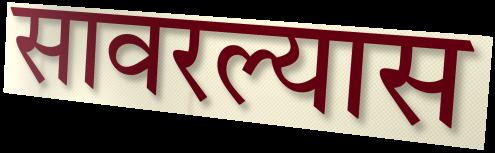
सावरल्यास